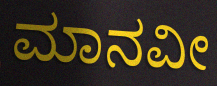
ಮಾನವೀ